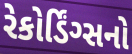
રેકોર્ડિંગ્સનો